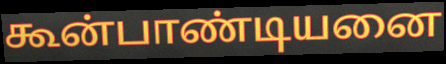
கூன்பாண்டியனை